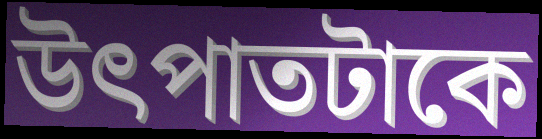
উৎপাতটাকে